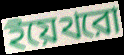
ইয়েথরো